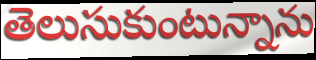
తెలుసుకుంటున్నాను